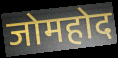
जोमहोद